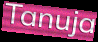
Tanuja